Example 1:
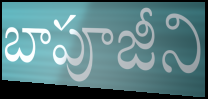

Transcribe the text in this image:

బాపూజీని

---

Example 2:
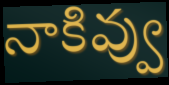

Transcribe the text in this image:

నాకివ్వు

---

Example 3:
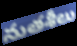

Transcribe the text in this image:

నుతశీలు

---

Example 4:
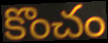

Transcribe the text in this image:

కొంచం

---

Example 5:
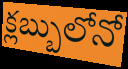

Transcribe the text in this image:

క్లబ్బులోనో